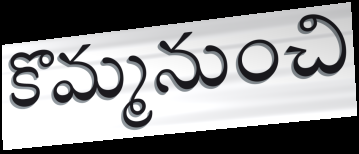
కొమ్మనుంచి